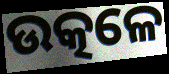
ଉତ୍କଳେ